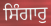
ਸਿੰਗਾਰੁ